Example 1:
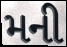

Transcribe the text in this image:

મની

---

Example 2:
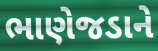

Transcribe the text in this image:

ભાણેજડાને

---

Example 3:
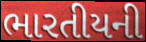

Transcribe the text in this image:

ભારતીયની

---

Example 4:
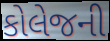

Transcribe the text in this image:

કોલેજની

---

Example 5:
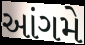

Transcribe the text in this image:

આંગમે